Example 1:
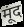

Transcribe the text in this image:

मूंद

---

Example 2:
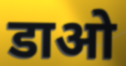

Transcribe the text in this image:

डाओ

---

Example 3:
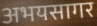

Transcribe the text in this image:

अभयसागर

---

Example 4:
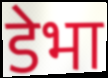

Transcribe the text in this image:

डेभा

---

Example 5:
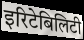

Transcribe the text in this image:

इरिटेबिलिटी